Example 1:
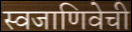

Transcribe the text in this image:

स्वजाणिवेची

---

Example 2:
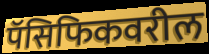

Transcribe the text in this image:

पॅसिफिकवरील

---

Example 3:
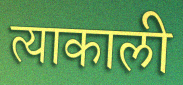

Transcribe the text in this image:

त्याकाली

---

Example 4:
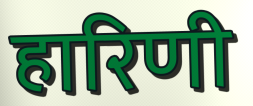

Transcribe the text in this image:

हारिणी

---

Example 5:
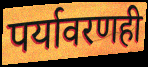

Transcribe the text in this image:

पर्यावरणही